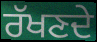
ਰੱਖਣਦੇ